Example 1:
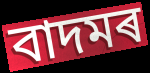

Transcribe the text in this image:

বাদমৰ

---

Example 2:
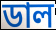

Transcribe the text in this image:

ডাল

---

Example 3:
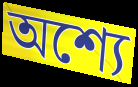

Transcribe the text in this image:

অশ্যে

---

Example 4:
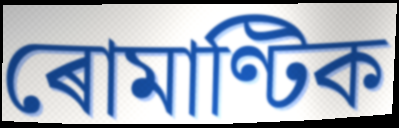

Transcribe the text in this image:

ৰোমাণ্টিক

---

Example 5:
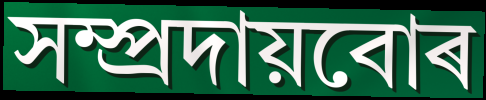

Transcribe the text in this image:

সম্প্ৰদায়বোৰ